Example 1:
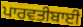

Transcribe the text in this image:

ਪਾਰਵਤੀਬਾਈ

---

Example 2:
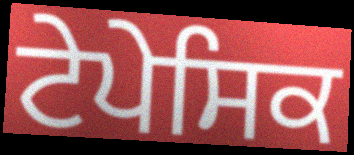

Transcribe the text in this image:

ਟੇਪੇਸਿਕ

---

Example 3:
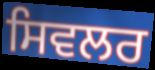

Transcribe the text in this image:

ਸਿਵਲਰ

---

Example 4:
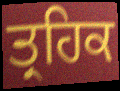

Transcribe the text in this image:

ਤ੍ਰਹਿਕ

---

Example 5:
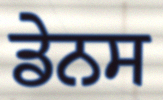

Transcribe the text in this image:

ਡੇਨਸ